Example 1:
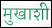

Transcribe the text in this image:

मुखाशी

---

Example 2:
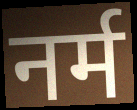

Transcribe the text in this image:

नर्म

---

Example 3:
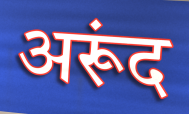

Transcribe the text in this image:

अरूंद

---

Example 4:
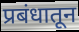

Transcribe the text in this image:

प्रबंधातून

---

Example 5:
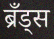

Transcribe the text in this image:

ब्रँड्स